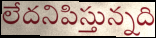
లేదనిపిస్తున్నది